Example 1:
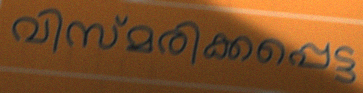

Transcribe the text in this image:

വിസ്മരിക്കപ്പെട്ട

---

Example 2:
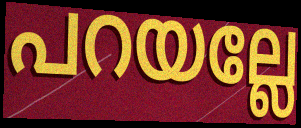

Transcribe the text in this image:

പറയല്ലേ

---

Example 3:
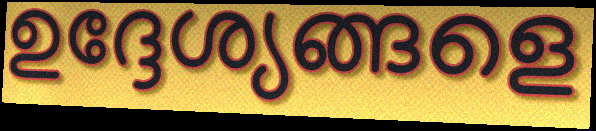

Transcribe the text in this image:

ഉദ്ദേശ്യങ്ങളെ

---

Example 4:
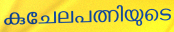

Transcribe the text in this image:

കുചേലപത്നിയുടെ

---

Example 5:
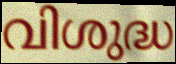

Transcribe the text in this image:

വിശുദ്ധ